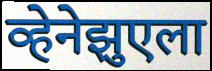
व्हेनेझुएला